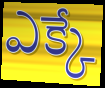
ఎక్కే